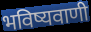
भविष्यवाणी